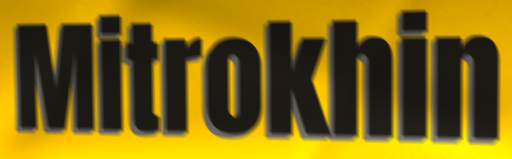
Mitrokhin